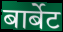
बार्बेट